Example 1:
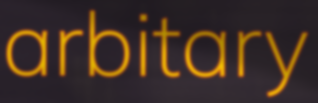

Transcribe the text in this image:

arbitary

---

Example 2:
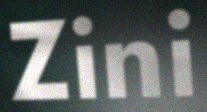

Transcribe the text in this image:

Zini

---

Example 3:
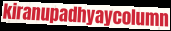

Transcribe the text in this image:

kiranupadhyaycolumn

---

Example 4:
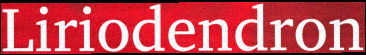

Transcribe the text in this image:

Liriodendron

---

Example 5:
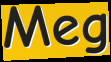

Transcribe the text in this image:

Meg